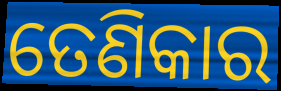
ତେଣିକାର